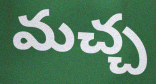
మచ్చ